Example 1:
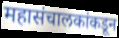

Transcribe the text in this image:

महासंचालकांकडून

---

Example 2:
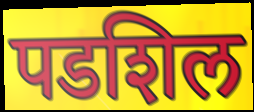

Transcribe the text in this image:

पडशिल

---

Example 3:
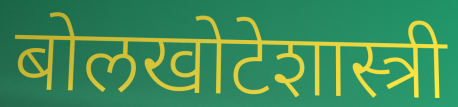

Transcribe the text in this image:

बोलखोटेशास्त्री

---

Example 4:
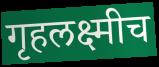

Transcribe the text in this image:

गृहलक्ष्मीच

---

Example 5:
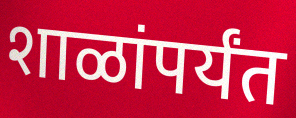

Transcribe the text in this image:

शाळांपर्यंत